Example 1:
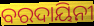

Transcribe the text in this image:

ବରଦାୟିନୀ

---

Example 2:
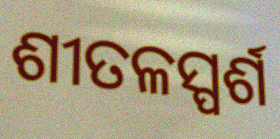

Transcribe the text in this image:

ଶୀତଳସ୍ପର୍ଶ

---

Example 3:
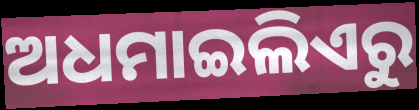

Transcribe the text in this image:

ଅଧମାଇଲିଏରୁ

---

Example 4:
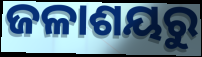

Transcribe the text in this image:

ଜଳାଶୟରୁ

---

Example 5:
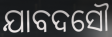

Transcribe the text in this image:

ଯାବଦସୌ